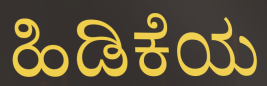
ಹಿಡಿಕೆಯ